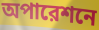
অপারেশনে